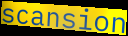
scansion